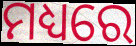
ମଧ୍ୟରେ